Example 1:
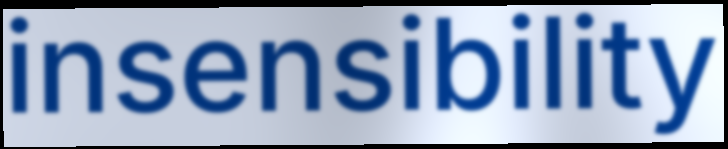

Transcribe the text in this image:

insensibility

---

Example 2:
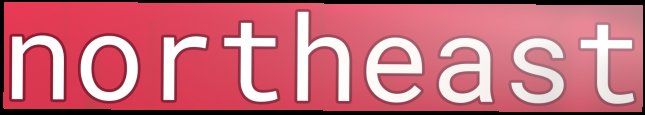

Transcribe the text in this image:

northeast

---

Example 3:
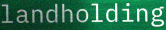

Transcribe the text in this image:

landholding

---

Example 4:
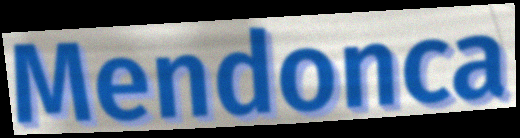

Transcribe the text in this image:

Mendonca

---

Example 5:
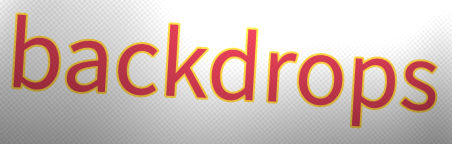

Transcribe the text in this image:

backdrops